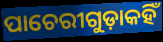
ପାଚେରୀଗୁଡ଼ାକହିଁ